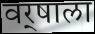
वर्षाला